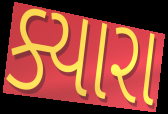
ક્યારા